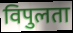
विपुलता